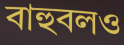
বাহুবলও